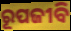
ରୂପଜୀବି